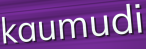
kaumudi